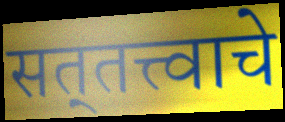
सत्‌तत्त्वाचे